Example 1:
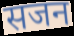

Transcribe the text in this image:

सजन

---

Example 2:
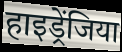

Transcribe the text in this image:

हाइड्रेंजिया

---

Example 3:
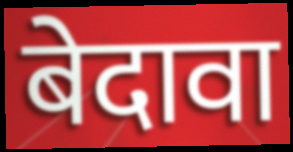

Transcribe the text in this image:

बेदावा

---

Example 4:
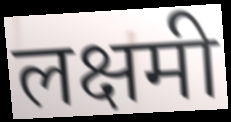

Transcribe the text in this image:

लक्षमी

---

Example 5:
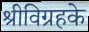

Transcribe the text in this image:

श्रीविग्रहके